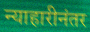
न्याहारीनंतर